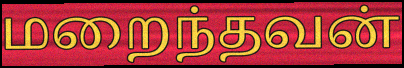
மறைந்தவன்